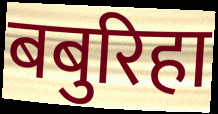
बबुरिहा